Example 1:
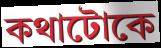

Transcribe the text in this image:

কথাটোকে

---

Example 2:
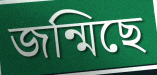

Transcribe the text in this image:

জন্মিছে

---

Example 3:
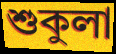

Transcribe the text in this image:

শুকুলা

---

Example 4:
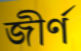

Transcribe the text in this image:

জীৰ্ণ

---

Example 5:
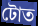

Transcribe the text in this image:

টোত